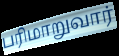
பரிமாறுவார்